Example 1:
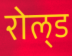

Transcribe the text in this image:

रोल्ड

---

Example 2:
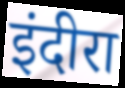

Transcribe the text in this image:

इंदीरा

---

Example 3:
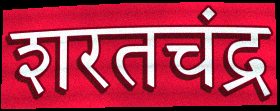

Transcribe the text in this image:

शरतचंद्र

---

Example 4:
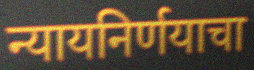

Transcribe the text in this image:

न्यायनिर्णयाचा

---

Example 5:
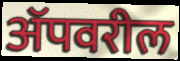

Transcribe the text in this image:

ॲपवरील